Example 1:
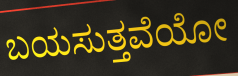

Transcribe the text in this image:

ಬಯಸುತ್ತವೆಯೋ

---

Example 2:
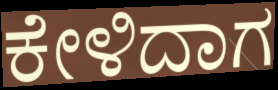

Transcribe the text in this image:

ಕೇಳಿದಾಗ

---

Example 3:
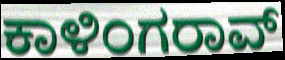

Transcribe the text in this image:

ಕಾಳಿಂಗರಾವ್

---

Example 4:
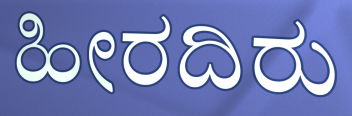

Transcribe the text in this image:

ಹೀರದಿರು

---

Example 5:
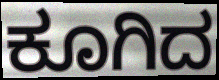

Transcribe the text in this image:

ಕೂಗಿದ